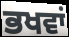
ਭਖਵਾਂ